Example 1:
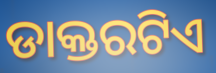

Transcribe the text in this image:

ଡାକ୍ତରଟିଏ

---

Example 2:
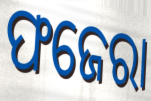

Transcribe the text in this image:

ଫଜେରା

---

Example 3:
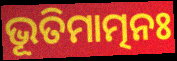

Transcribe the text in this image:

ଭୂତିମାତ୍ମନଃ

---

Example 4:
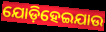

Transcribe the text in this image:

ଯୋଡ଼ିହେଇଯାଉ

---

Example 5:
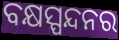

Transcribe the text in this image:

ବକ୍ଷସ୍ପନ୍ଦନର